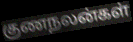
குணநலன்கள்